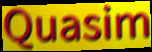
Quasim